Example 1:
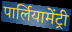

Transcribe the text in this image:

पार्लियामेंट्री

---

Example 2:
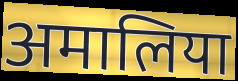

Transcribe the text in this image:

अमालिया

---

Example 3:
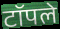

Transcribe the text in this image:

टॉपले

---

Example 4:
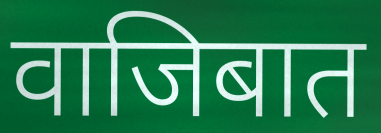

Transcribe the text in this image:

वाजिबात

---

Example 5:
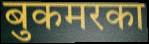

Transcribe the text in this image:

बुकमरका